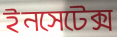
ইনসেটেক্স